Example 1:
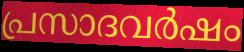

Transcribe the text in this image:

പ്രസാദവർഷം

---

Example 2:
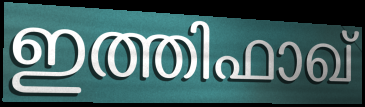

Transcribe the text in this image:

ഇത്തിഫാഖ്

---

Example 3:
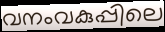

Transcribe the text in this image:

വനംവകുപ്പിലെ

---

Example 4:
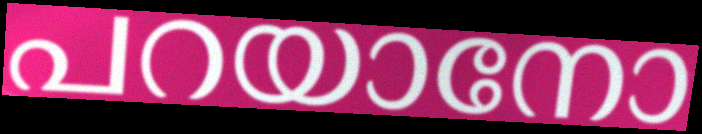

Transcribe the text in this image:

പറയാനോ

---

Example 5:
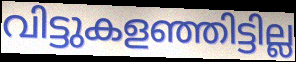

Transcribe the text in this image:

വിട്ടുകളഞ്ഞിട്ടില്ല